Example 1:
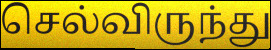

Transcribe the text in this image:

செல்விருந்து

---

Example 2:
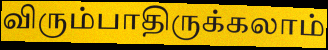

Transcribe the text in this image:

விரும்பாதிருக்கலாம்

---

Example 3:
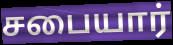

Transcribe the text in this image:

சபையார்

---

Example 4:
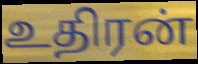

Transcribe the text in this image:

உதிரன்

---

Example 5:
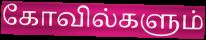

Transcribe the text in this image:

கோவில்களும்